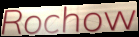
Rochow